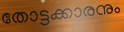
തോട്ടക്കാരനും